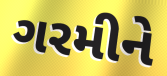
ગરમીને